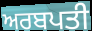
ਅਰਬਪਤੀ